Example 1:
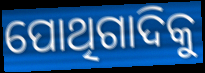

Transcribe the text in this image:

ପୋଥିଗାଦିକୁ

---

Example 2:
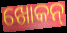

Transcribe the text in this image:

ଖୋକନ୍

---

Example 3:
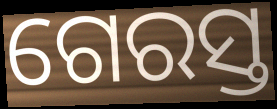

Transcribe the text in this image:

ଗେରସ୍ତ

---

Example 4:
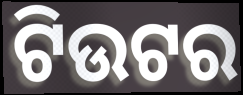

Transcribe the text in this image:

ଟିଉଟର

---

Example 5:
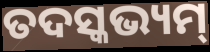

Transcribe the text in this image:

ତଦସ୍କଭ୍ୟମ୍